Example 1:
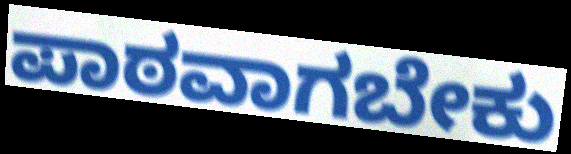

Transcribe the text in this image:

ಪಾಠವಾಗಬೇಕು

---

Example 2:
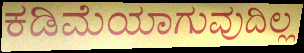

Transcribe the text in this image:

ಕಡಿಮೆಯಾಗುವುದಿಲ್ಲ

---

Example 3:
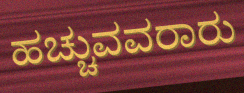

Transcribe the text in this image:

ಹಚ್ಚುವವರಾರು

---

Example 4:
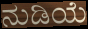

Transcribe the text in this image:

ನುಡಿಯೆ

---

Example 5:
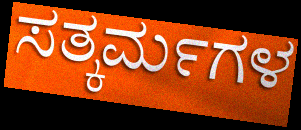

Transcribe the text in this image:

ಸತ್ಕರ್ಮಗಳ